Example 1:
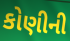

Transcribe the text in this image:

કોણીની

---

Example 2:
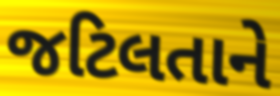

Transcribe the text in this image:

જટિલતાને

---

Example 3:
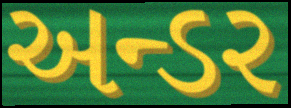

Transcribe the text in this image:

અન્ડર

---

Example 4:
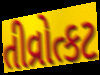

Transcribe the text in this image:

તીવ્રોત્કટ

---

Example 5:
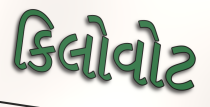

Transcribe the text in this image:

કિલોવોટ